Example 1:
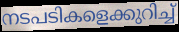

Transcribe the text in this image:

നടപടികളെക്കുറിച്ച്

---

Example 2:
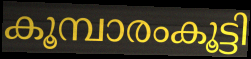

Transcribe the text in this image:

കൂമ്പാരംകൂട്ടി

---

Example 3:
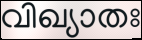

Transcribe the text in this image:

വിഖ്യാതഃ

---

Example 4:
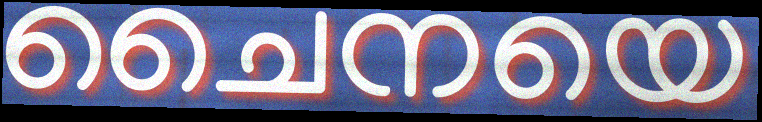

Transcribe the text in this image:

ചൈനയെ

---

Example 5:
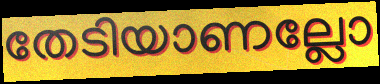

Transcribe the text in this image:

തേടിയാണല്ലോ